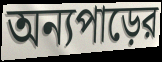
অন্যপাড়ের